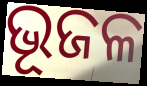
ଭୂଜଳ